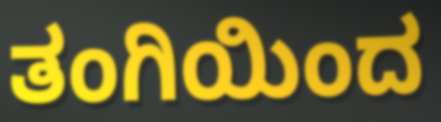
ತಂಗಿಯಿಂದ